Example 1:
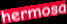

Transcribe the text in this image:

hermosa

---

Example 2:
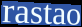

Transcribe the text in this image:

rastao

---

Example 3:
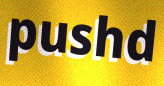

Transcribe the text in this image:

pushd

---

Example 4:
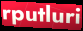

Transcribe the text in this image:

rputluri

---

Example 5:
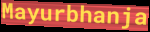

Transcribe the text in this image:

Mayurbhanja